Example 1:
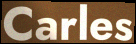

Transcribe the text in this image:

Carles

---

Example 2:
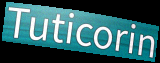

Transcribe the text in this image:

Tuticorin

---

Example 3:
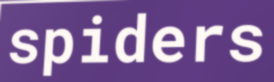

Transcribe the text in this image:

spiders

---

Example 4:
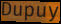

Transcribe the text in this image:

Dupuy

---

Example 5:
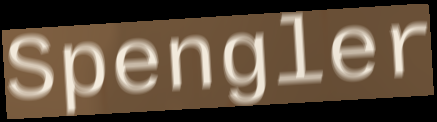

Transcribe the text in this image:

Spengler